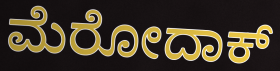
ಮೆರೋದಾಕ್